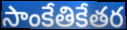
సాంకేతికేతర